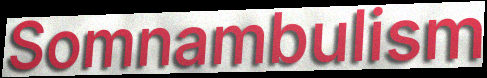
Somnambulism